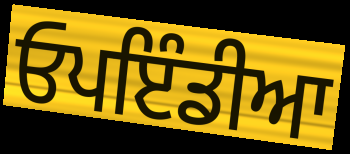
ਓਪਇੰਡੀਆ